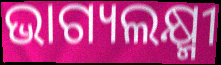
ଭାଗ୍ୟଲକ୍ଷ୍ମୀ